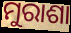
ମୁରାଶା